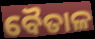
ବୈତାଳ